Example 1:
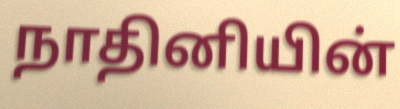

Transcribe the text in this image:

நாதினியின்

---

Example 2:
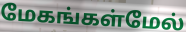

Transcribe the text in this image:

மேகங்கள்மேல்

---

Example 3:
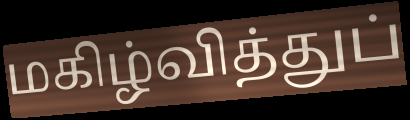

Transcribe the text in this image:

மகிழ்வித்துப்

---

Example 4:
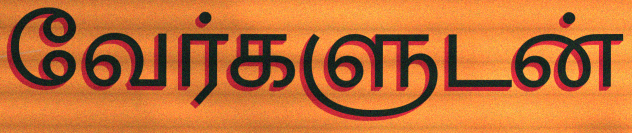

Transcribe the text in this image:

வேர்களுடன்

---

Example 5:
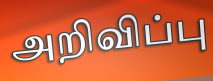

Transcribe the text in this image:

அறிவிப்பு